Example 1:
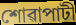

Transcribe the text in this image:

শোৱাপাটী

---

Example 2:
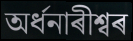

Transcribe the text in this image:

অৰ্ধনাৰীশ্বৰ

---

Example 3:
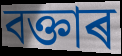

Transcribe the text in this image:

বক্তাৰ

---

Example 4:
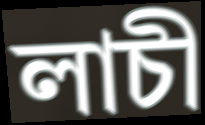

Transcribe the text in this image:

লাচী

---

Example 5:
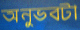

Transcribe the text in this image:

অনুভবটা